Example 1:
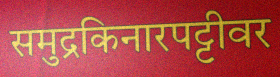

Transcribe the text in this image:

समुद्रकिनारपट्टीवर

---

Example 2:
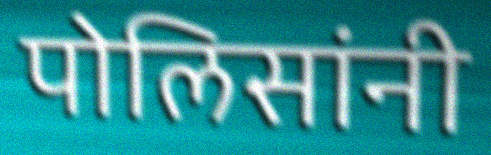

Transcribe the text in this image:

पोलिसांनी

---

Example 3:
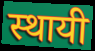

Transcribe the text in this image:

स्थायी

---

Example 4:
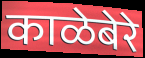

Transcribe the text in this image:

काळेबेरे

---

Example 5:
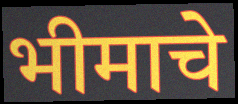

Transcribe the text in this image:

भीमाचे